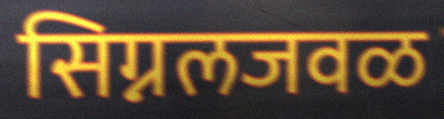
सिग्नलजवळ